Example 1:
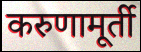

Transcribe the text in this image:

करुणामूर्ती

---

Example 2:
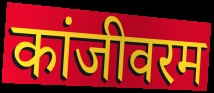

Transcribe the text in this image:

कांजीवरम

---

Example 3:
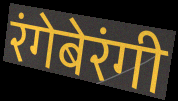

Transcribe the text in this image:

रंगेबेरंगी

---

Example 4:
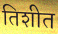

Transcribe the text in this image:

तिशीत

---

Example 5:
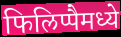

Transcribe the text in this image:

फिलिप्पैमध्ये